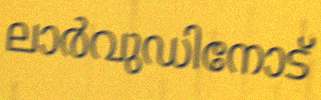
ലാർവുഡിനോട്